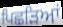
ਪਿਛੜਿਆਂ